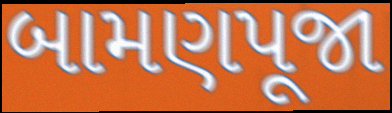
બામણપૂજા